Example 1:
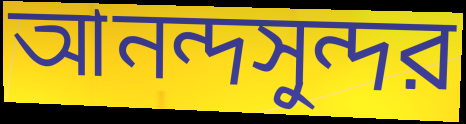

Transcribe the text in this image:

আনন্দসুন্দর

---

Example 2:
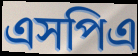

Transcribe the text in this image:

এসপিএ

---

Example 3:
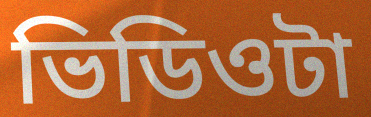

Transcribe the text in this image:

ভিডিওটা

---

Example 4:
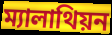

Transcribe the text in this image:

ম্যালাথিয়ন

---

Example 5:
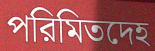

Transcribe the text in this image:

পরিমিতদেহ